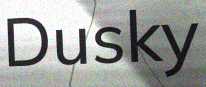
Dusky